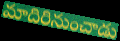
మాదిరినుంచాడు